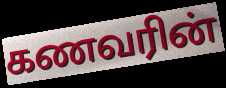
கணவரின்